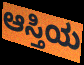
ಆಸ್ತಿಯ